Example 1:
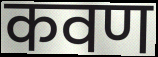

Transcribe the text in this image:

कवण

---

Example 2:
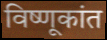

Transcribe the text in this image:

विष्णूकांत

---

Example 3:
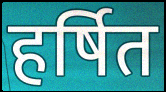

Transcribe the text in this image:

हर्षित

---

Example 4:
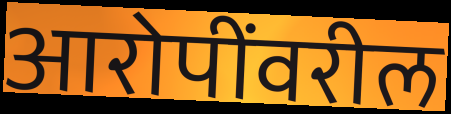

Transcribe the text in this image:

आरोपींवरील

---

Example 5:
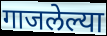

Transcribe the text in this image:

गाजलेल्या